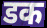
डक